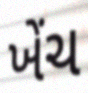
ખેંચ